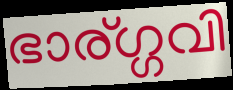
ഭാര്ഗ്ഗവി